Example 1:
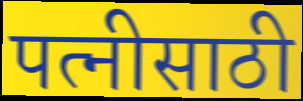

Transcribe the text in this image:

पत्नीसाठी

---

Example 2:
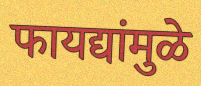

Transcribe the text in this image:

फायद्यांमुळे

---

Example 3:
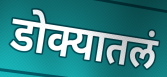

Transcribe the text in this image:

डोक्यातलं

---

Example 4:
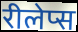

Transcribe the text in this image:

रीलेप्स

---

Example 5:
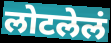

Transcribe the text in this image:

लोटलेलं